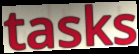
tasks